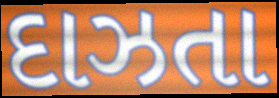
દાઝતા